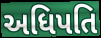
અધિપતિ